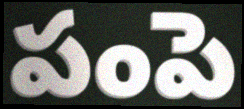
పంపె